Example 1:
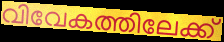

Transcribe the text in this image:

വിവേകത്തിലേക്ക്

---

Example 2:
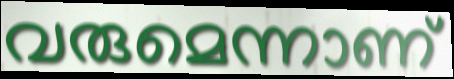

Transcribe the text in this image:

വരുമെന്നാണ്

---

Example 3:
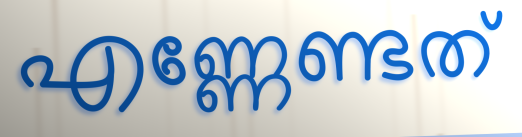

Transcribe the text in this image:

എണ്ണേണ്ടത്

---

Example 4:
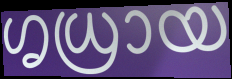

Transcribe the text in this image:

ഗൃധ്രായ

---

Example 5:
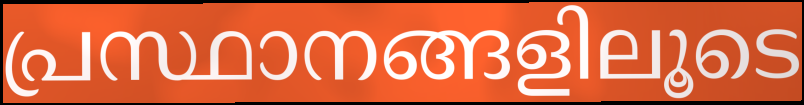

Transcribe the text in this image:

പ്രസ്ഥാനങ്ങളിലൂടെ